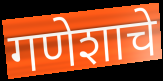
गणेशाचे